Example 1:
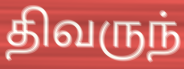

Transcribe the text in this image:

திவருந்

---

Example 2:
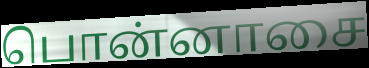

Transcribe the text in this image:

பொன்னாசை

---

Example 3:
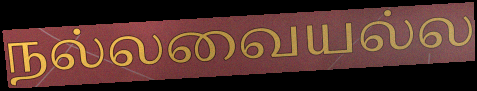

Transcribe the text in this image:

நல்லவையல்ல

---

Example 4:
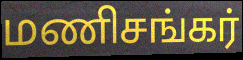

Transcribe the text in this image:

மணிசங்கர்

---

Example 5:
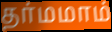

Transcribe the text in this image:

தர்மமாம்